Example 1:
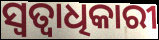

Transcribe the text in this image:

ସ୍ବତ୍ବାଧିକାରୀ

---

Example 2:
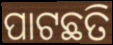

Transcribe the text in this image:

ପାଟଛତି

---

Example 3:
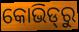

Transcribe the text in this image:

କୋଭିଡ୍‌ରୁ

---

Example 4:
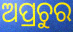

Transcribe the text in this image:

ଅପ୍ରଚୁର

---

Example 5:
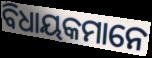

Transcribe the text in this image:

ବିଧାୟକମାନେ